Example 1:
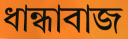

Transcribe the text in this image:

ধান্ধাবাজ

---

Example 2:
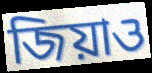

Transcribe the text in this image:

জিয়াও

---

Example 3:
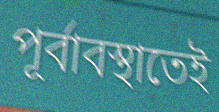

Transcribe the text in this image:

পূর্বাবস্থাতেই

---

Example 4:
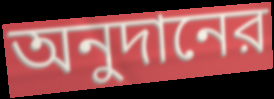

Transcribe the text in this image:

অনুদানের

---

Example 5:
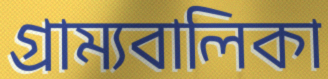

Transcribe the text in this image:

গ্রাম্যবালিকা